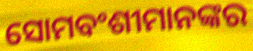
ସୋମବଂଶୀମାନଙ୍କର